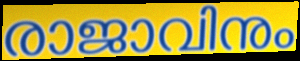
രാജാവിനും